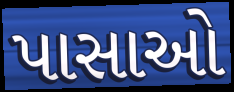
પાસાઓ